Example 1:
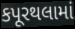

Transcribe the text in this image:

કપૂરથલામાં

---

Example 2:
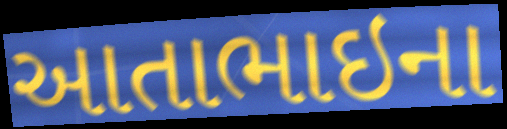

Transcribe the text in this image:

આતાભાઇના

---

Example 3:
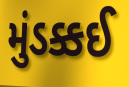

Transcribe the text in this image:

મુંડક્કઈ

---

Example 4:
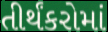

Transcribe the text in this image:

તીર્થંકરોમાં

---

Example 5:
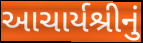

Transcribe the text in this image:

આચાર્યશ્રીનું